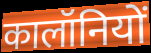
कालॉनियों